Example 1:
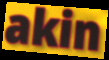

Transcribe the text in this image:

akin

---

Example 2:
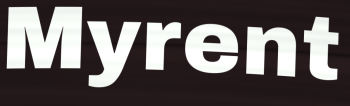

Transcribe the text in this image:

Myrent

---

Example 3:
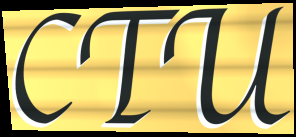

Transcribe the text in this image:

CTU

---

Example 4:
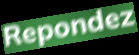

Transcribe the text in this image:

Repondez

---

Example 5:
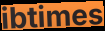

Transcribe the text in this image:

ibtimes